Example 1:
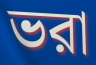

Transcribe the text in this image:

ভরা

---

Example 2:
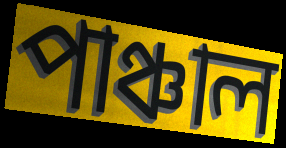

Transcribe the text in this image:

পাঞ্চাল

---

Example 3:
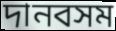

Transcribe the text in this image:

দানবসম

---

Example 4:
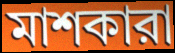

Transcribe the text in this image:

মাশকারা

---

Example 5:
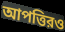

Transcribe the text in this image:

আপত্তিরও